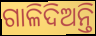
ଗାଳିଦିଅନ୍ତି